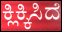
ಕ್ಲಿಕ್ಕಿಸಿದೆ